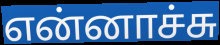
என்னாச்சு